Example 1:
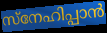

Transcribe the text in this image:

സ്നേഹിപ്പാൻ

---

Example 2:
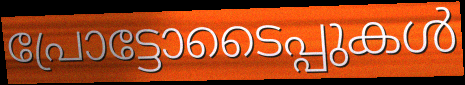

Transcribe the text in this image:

പ്രോട്ടോടൈപ്പുകൾ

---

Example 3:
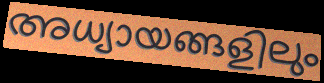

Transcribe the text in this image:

അധ്യായങ്ങളിലും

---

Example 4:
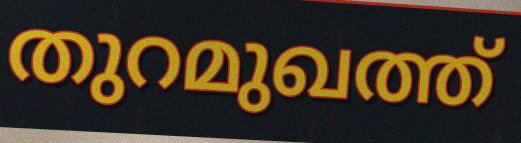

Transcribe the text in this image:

തുറമുഖത്ത്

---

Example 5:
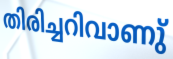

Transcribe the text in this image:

തിരിച്ചറിവാണു്